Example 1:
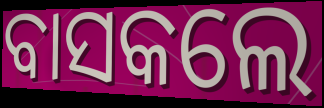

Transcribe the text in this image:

ବାସକଲେ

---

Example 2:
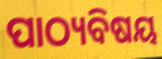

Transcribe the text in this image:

ପାଠ୍ୟବିଷୟ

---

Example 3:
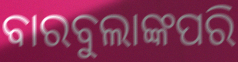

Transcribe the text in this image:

ବାରବୁଲାଙ୍କପରି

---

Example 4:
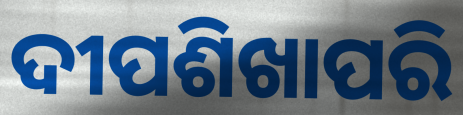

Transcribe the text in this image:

ଦୀପଶିଖାପରି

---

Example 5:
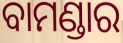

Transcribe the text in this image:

ବାମଣ୍ଡାର